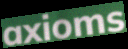
axioms